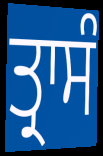
ਤ੍ਰਾਸੰ